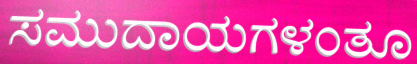
ಸಮುದಾಯಗಳಂತೂ